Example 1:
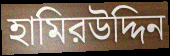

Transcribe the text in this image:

হামিরউদ্দিন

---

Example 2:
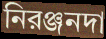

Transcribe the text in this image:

নিরঞ্জনদা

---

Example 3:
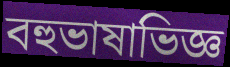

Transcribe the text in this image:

বহুভাষাভিজ্ঞ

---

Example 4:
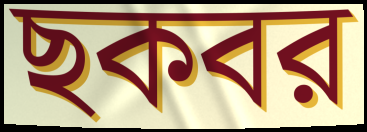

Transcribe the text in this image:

ছকবর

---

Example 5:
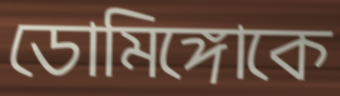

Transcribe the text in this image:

ডোমিঙ্গোকে